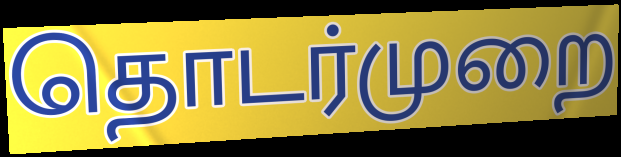
தொடர்முறை